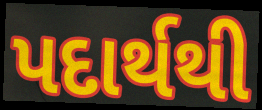
પદાર્થથી